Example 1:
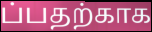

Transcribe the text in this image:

ப்பதற்காக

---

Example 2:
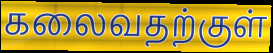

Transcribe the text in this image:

கலைவதற்குள்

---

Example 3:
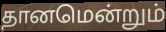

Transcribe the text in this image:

தானமென்றும்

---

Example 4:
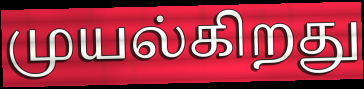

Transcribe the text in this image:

முயல்கிறது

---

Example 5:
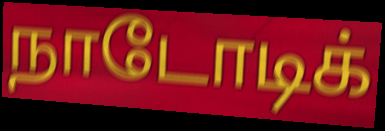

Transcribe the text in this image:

நாடோடிக்